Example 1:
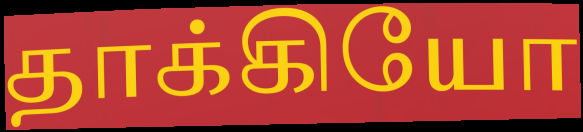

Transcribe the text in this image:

தாக்கியோ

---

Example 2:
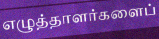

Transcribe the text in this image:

எழுத்தாளர்களைப்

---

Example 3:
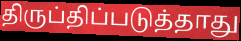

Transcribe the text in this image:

திருப்திப்படுத்தாது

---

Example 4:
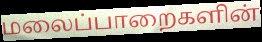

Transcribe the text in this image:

மலைப்பாறைகளின்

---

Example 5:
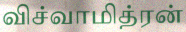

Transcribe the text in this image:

விச்வாமித்ரன்